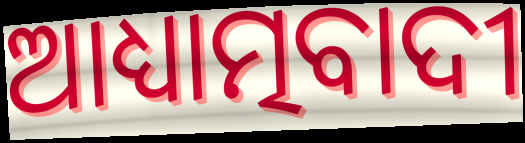
ଆଧ୍ୟାତ୍ମବାଦୀ